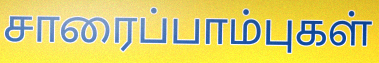
சாரைப்பாம்புகள்